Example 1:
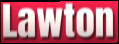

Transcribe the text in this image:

Lawton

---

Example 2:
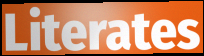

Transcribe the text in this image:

Literates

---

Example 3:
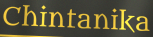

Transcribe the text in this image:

Chintanika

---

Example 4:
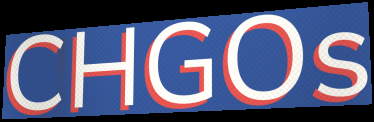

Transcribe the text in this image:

CHGOs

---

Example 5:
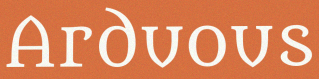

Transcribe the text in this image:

Arduous